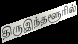
திருஇந்தளூரில்